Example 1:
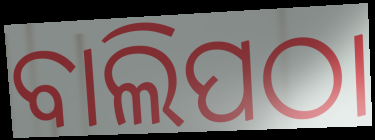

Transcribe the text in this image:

ବାଲିପଠା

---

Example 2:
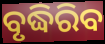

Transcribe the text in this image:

ବୃଦ୍ଧିରିବ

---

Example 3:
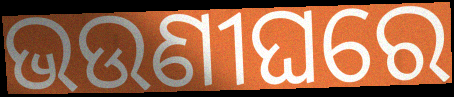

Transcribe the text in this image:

ଭଉଣୀଘରେ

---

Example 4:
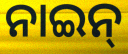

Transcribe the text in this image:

ନାଇନ୍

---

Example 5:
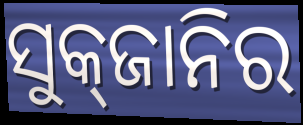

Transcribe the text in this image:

ସୁକ୍‌ଜାନିର